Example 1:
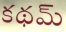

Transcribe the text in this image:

కథమ్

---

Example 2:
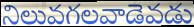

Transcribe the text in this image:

నిలువగలవాడెవడు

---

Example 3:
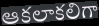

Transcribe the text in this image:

ఆకలాకలిగా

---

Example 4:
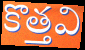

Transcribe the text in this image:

కొత్తవి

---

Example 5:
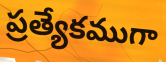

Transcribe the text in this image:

ప్రత్యేకముగా